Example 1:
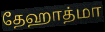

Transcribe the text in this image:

தேஹாத்மா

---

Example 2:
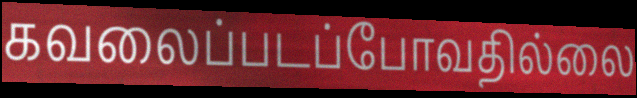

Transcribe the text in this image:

கவலைப்படப்போவதில்லை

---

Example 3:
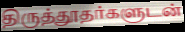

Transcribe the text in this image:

திருத்தூதர்களுடன்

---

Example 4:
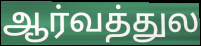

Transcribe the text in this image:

ஆர்வத்துல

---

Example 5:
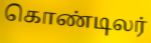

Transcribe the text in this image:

கொண்டிலர்